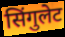
सिंगुलेट